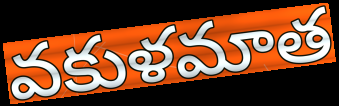
వకుళమాత